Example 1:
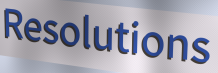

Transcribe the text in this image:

Resolutions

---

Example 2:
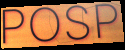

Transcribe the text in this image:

POSP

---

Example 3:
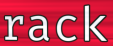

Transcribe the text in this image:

rack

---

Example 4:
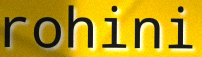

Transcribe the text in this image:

rohini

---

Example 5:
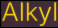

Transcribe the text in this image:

Alkyl